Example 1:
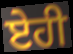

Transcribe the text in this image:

ਏਹੀ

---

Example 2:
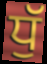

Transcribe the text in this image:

ਧੁੱ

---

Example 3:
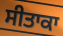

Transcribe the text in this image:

ਸੀਤਾਕਾ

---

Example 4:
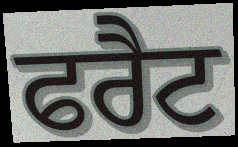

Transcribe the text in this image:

ਫਰੈਟ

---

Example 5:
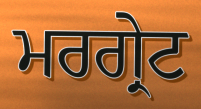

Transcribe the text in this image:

ਮਰਗ੍ਰੇਟ